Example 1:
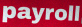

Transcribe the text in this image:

payroll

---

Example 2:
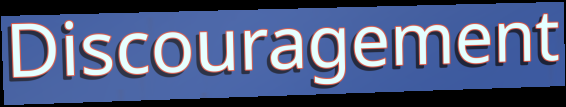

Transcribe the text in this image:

Discouragement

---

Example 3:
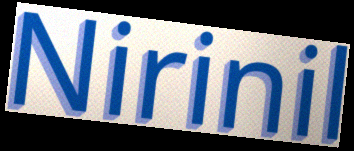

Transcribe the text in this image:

Nirinil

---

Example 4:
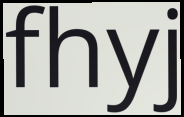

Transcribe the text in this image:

fhyj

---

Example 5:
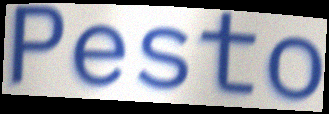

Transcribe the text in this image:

Pesto